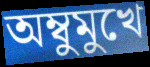
অম্বুমুখে